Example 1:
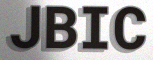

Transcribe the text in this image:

JBIC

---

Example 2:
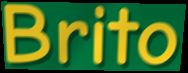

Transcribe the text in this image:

Brito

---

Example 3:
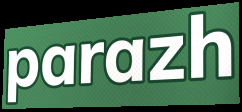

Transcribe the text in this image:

parazh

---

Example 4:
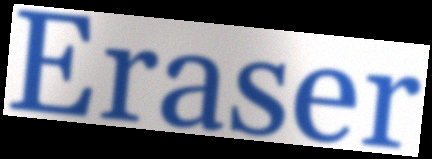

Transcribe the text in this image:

Eraser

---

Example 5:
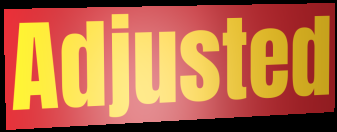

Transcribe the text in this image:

Adjusted